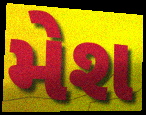
મેશ